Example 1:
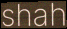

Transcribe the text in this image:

shah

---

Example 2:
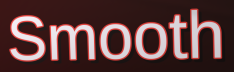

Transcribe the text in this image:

Smooth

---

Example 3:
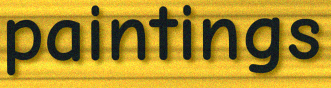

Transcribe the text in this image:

paintings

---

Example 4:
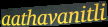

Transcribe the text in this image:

aathavanitli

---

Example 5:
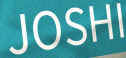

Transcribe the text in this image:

JOSHI